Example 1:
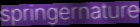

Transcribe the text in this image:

springernature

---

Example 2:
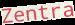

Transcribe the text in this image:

Zentra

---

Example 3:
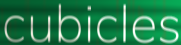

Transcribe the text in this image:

cubicles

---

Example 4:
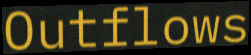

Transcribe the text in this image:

Outflows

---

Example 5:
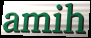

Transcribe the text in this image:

amih